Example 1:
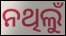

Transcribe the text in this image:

ନଥିଲୁଁ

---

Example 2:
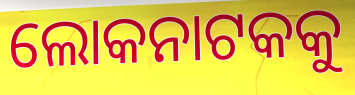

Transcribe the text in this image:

ଲୋକନାଟକକୁ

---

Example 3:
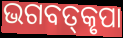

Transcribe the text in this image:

ଭଗବତ୍‌କୃପା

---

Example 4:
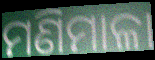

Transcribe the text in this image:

ମଣିମାଳା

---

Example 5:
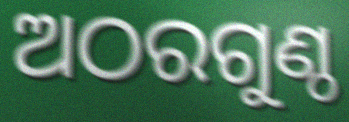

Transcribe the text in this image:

ଅଠରଗୁଣ୍ଠ